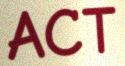
ACT